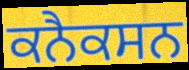
ਕਨੈਕਸਨ